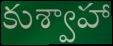
కుశ్వాహా